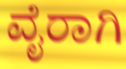
ವೈರಾಗಿ